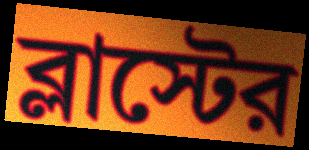
ব্লাস্টের